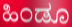
ಹಿಂಡೂ